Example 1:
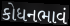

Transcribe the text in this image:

કોધનભાવં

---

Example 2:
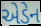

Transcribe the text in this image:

એડેન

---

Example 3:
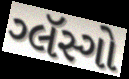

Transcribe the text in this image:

ગ્લૅસ્ગો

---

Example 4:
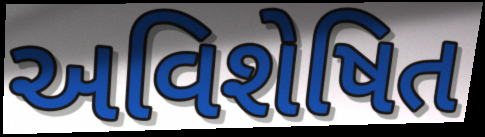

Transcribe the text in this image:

અવિશેષિત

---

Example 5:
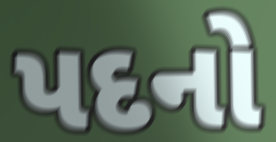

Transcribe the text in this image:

પદનો